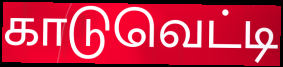
காடுவெட்டி